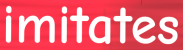
imitates